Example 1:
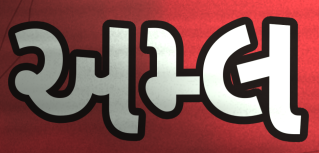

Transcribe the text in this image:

અમ્લ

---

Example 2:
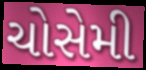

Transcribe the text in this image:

ચોસેમી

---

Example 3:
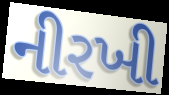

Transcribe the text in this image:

નીરખી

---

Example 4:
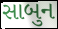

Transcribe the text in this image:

સાબુન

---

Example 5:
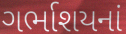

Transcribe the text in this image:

ગર્ભાશયનાં